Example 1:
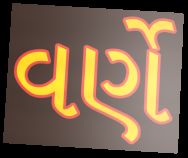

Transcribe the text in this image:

વર્ણે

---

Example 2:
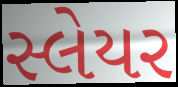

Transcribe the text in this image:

સ્લેયર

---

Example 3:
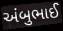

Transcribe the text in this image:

અંબુભાઈ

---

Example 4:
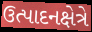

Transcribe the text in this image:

ઉત્પાદનક્ષેત્રે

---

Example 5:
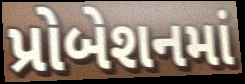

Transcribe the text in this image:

પ્રોબેશનમાં